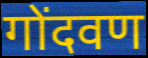
गोंदवण